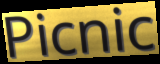
Picnic